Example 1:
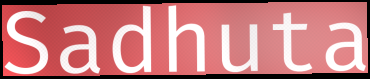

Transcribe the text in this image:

Sadhuta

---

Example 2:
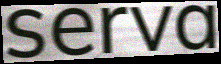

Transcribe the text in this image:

serva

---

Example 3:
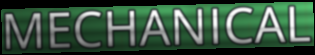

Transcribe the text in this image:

MECHANICAL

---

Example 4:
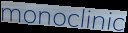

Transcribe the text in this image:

monoclinic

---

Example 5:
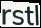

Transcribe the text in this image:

rstl